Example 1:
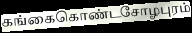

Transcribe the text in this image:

கங்கைகொண்டசோழபுரம்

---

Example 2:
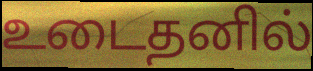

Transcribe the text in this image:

உடைதனில்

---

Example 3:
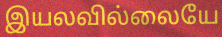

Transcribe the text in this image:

இயலவில்லையே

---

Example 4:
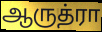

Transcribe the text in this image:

ஆருத்ரா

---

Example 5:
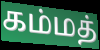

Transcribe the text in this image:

கம்மத்